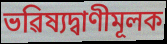
ভৱিষ্যদ্বাণীমূলক